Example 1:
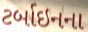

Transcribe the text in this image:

ટર્બાઇનના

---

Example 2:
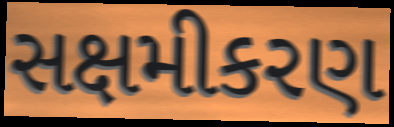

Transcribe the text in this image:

સક્ષમીકરણ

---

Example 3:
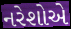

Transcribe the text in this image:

નરેશોએ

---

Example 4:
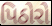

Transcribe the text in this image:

પિઠોરો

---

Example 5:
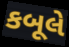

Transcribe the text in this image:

કબૂલે